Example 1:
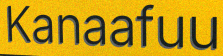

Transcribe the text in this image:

Kanaafuu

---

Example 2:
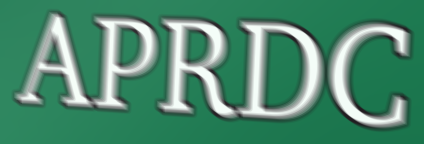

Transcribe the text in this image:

APRDC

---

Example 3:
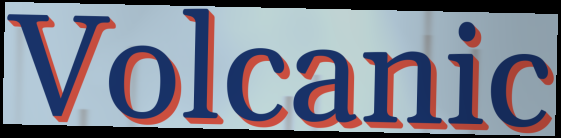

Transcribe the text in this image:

Volcanic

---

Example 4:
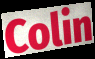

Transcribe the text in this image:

Colin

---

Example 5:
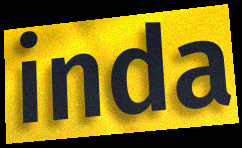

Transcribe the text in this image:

inda